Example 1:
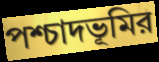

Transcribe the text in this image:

পশ্চাদভূমির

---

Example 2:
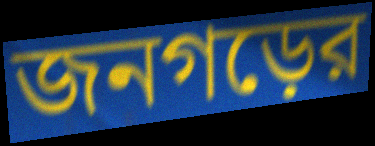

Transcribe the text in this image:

জনগড়ের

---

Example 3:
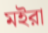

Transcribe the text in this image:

মইরা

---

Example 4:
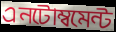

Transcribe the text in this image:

এনটোম্বমেন্ট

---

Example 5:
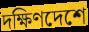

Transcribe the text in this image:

দক্ষিণদেশে